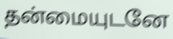
தன்மையுடனே